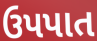
ઉપપાત